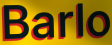
Barlo